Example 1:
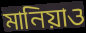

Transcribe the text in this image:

মানিয়াও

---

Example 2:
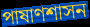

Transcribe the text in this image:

পাষাণশাসন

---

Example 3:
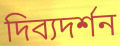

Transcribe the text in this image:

দিব্যদর্শন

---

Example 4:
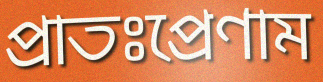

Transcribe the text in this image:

প্রাতঃপ্রেণাম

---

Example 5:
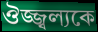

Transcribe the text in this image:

ঔজ্জ্বল্যকে